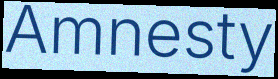
Amnesty